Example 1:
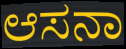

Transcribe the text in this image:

ಆಸನಾ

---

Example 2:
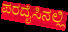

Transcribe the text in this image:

ಪರದೈಸಿನಲ್ಲಿ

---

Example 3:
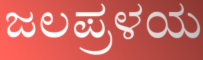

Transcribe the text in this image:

ಜಲಪ್ರಳಯ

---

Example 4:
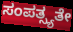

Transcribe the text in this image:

ಸಂಪತ್ಸ್ಯತೇ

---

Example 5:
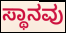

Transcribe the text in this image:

ಸ್ಥಾನವು